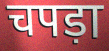
चपड़ा